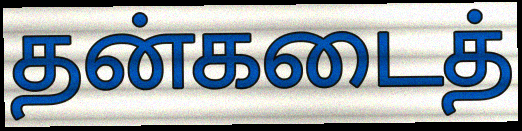
தன்கடைத்